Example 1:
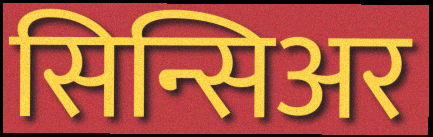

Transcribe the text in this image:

सिन्सिअर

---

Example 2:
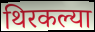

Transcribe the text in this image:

थिरकल्या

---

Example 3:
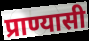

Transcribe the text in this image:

प्राण्यासी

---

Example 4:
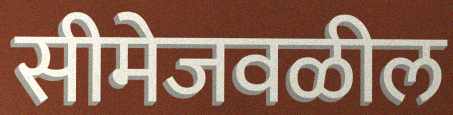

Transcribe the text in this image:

सीमेजवळील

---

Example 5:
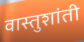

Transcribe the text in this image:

वास्तुशांती